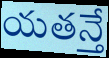
యతన్తే